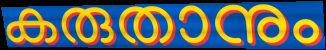
കരുതാനും